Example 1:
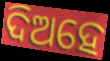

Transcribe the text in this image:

ଦିଅହେ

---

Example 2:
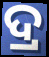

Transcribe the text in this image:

ଦ୍ର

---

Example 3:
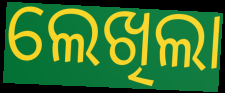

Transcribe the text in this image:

ଲେଖିଲା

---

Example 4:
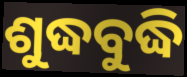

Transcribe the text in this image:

ଶୁଦ୍ଧବୁଦ୍ଧି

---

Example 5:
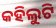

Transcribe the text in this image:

କହିଲୁଟି